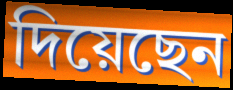
দিয়েছেন